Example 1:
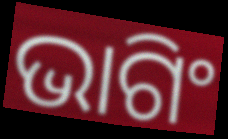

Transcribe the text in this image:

ଭାଗିଂ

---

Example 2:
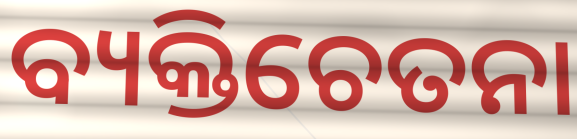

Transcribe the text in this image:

ବ୍ୟକ୍ତିଚେତନା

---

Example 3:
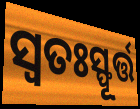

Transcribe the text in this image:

ସ୍ୱତଃସ୍ଫୂର୍ତ୍ତ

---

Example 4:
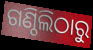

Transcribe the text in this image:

ଗଣ୍ଠିଲିଠାରୁ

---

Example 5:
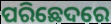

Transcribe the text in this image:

ପରିଛେଦରେ